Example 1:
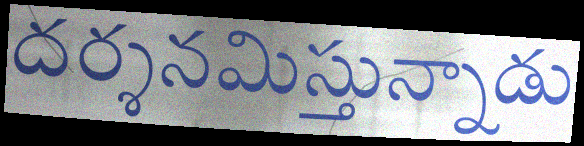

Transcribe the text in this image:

దర్శనమిస్తున్నాడు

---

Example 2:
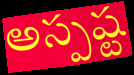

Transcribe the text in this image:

అస్పష్ట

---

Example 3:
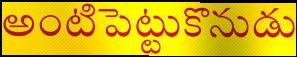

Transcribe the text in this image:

అంటిపెట్టుకొనుడు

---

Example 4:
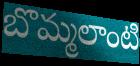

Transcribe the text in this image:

బొమ్మలాంటి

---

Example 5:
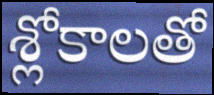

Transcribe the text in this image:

శ్లోకాలతో